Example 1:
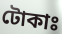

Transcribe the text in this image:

টোকাঃ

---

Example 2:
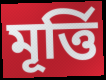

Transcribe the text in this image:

মূৰ্ত্তি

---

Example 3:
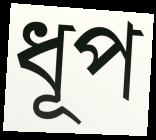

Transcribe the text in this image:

ধূপ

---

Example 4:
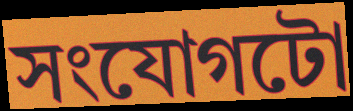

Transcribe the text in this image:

সংযোগটো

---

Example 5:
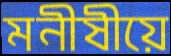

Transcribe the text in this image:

মনীষীয়ে